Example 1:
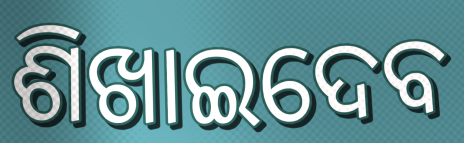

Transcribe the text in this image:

ଶିଖାଇଦେବ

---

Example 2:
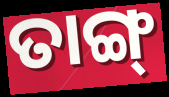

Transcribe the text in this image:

ତାଙ୍ଗ୍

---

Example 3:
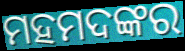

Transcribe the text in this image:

ମହମଦଙ୍କର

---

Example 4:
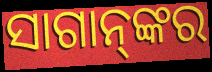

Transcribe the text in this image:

ସାଗାନ୍‌ଙ୍କର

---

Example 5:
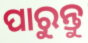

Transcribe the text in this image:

ପାରୁନ୍ତୁ